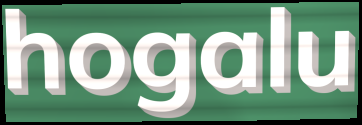
hogalu